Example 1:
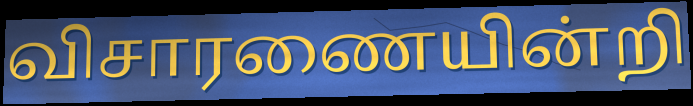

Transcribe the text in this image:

விசாரணையின்றி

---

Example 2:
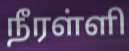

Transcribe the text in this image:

நீரள்ளி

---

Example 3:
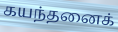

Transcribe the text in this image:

கயந்தனைக்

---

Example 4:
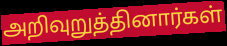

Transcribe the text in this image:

அறிவுறுத்தினார்கள்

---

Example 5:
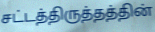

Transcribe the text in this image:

சட்டத்திருத்தத்தின்